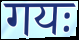
गयः